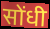
सोंधी